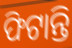
ଫିଟାନ୍ତି